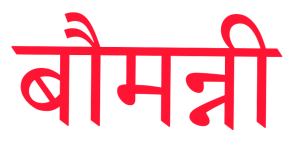
बौमन्नी